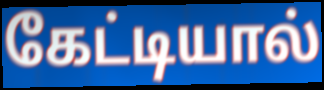
கேட்டியால்